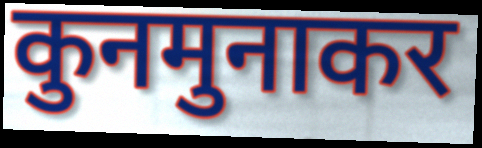
कुनमुनाकर